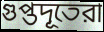
গুপ্তদূতেরা